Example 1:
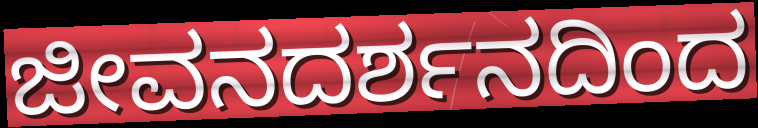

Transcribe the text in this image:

ಜೀವನದರ್ಶನದಿಂದ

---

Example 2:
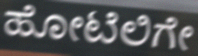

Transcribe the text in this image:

ಹೋಟೆಲಿಗೇ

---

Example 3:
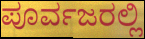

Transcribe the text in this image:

ಪೂರ್ವಜರಲ್ಲಿ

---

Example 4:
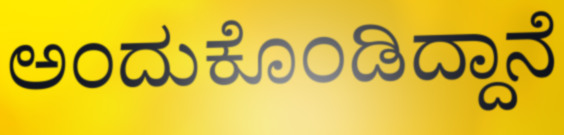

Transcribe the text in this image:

ಅಂದುಕೊಂಡಿದ್ದಾನೆ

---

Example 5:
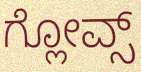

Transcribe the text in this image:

ಗ್ಲೋವ್ಸ್